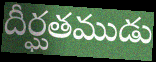
దీర్ఘతముడు